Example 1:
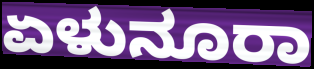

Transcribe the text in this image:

ಏಳುನೂರಾ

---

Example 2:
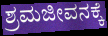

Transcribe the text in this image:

ಶ್ರಮಜೀವನಕ್ಕೆ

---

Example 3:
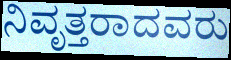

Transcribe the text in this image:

ನಿವೃತ್ತರಾದವರು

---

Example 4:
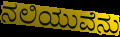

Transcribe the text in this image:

ನಲಿಯುವೆನು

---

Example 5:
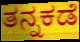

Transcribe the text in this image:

ತನ್ನಕಡೆ